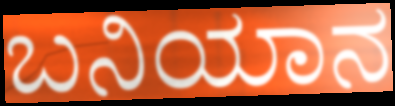
ಬನಿಯಾನ